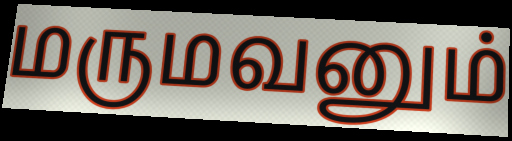
மருமவனும்